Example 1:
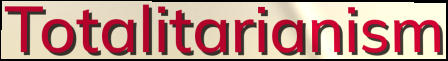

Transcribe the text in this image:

Totalitarianism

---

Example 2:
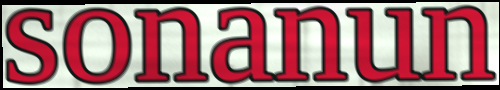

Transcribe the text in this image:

sonanun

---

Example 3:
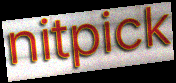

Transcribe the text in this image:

nitpick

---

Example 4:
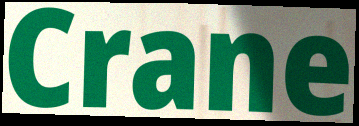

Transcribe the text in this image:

Crane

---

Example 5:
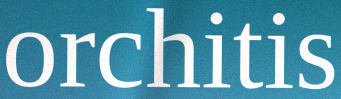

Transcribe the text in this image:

orchitis